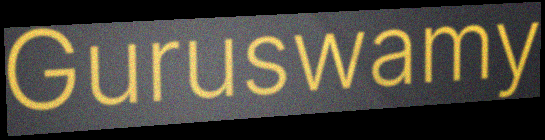
Guruswamy